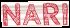
NARI